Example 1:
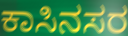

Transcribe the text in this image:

ಕಾಸಿನಸರ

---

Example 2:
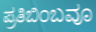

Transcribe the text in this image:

ಪ್ರತಿಬಿಂಬವೂ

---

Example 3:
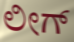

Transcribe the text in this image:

ಲೀಗ್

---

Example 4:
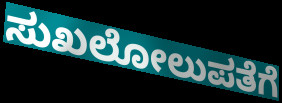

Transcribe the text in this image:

ಸುಖಲೋಲುಪತೆಗೆ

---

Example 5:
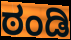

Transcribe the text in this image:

ಠಂಡಿ